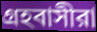
গ্রহবাসীরা